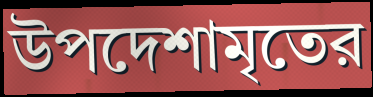
উপদেশামৃতের